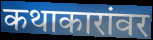
कथाकारांवर